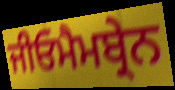
ਜੀਓਮੈਮਬ੍ਰੇਨ